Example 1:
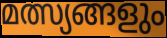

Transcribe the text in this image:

മത്സ്യങ്ങളും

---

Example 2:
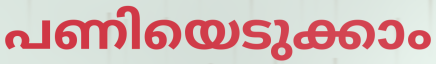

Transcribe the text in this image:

പണിയെടുക്കാം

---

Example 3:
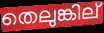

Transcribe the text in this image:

തെലുങ്കില്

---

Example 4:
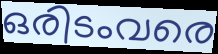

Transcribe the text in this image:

ഒരിടംവരെ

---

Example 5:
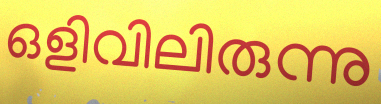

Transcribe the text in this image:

ഒളിവിലിരുന്നു